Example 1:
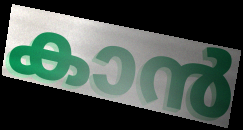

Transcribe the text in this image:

കാൻ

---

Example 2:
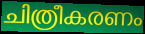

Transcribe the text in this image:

ചിത്രീകരണം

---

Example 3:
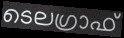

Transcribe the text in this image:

ടെലഗ്രാഫ്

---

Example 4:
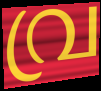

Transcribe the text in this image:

വ്ര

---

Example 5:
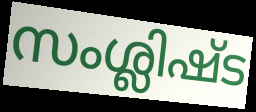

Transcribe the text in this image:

സംശ്ലിഷ്ട